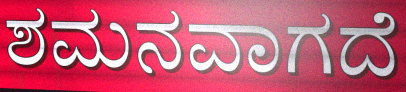
ಶಮನವಾಗದೆ